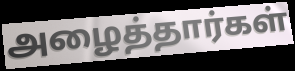
அழைத்தார்கள்